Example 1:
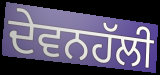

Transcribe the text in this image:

ਦੇਵਨਹੱਲੀ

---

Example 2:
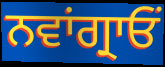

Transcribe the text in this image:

ਨਵਾਂਗ੍ਰਾਓਂ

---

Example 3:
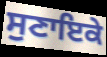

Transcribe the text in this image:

ਸੁਣਾਇਕੇ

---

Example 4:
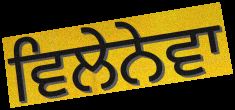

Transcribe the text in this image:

ਵਿਲੇਨੇਵਾ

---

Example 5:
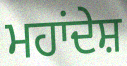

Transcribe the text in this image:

ਮਹਾਂਦੇਸ਼